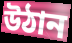
উঠান